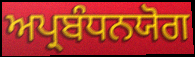
ਅਪ੍ਰਬੰਧਨਯੋਗ